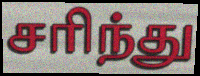
சரிந்து